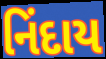
નિંદાય